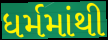
ધર્મમાંથી